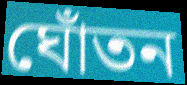
ঘোঁতন